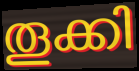
തൂക്കി